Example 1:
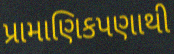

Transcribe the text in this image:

પ્રામાણિકપણાથી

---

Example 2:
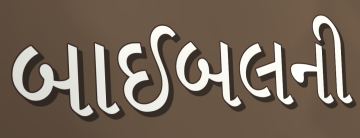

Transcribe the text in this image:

બાઈબલની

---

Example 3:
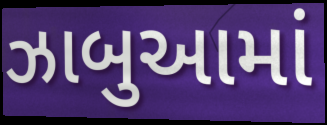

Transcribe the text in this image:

ઝાબુઆમાં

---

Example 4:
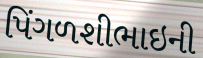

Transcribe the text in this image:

પિંગળશીભાઇની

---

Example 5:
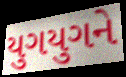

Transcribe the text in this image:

યુગયુગને